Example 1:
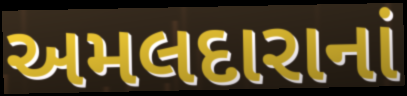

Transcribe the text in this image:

અમલદારાનાં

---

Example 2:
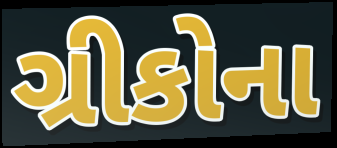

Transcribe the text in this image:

ગ્રીકોના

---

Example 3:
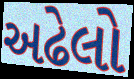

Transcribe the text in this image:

અઢેલો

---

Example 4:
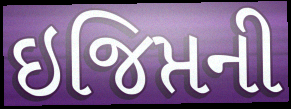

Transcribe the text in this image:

ઇજિપ્તની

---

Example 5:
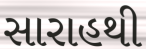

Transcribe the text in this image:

સારાહથી